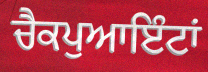
ਚੈਕਪੁਆਇੰਟਾਂ